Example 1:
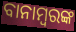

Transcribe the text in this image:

ବାନାମ୍ବରଙ୍କ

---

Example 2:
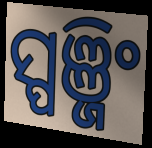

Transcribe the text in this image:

ସ୍ପଞ୍ଜିଂ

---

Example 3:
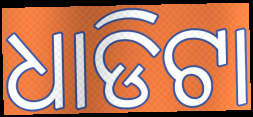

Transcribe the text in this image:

ଧାଡିଟା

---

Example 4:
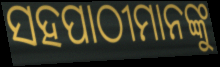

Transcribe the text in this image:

ସହପାଠୀମାନଙ୍କୁ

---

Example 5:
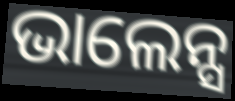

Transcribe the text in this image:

ଭାଲେନ୍ସ